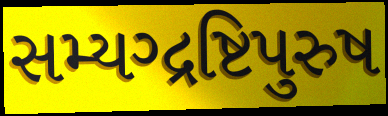
સમ્યગ્દ્રષ્ટિપુરુષ